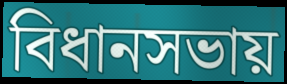
বিধানসভায়